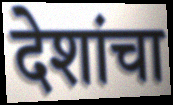
देशांचा